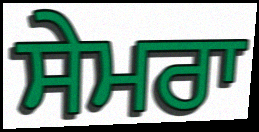
ਸੇਮਰਾ